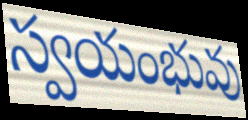
స్వయంభువు